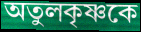
অতুলকৃষ্ণকে